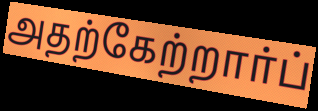
அதற்கேற்றார்ப்